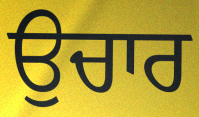
ਉਚਾਰ